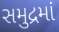
સમુદ્રમાં